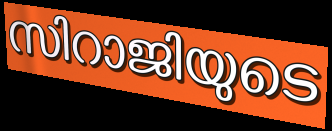
സിറാജിയുടെ